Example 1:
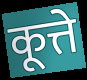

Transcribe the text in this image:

कूत्ते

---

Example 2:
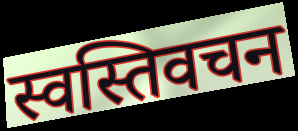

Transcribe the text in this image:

स्वस्तिवचन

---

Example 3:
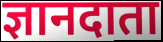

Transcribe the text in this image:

ज्ञानदाता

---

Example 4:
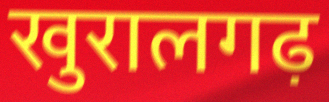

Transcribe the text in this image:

खुरालगढ़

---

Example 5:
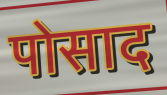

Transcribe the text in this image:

पोसाद